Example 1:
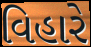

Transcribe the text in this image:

વિહારે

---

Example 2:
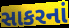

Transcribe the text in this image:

સાકરનાં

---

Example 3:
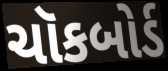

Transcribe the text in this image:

ચૉકબોર્ડ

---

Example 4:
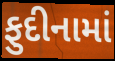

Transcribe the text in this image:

ફુદીનામાં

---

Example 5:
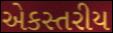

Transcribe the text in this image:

એકસ્તરીય